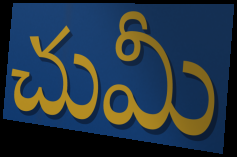
చుమీ